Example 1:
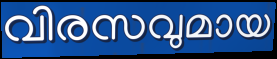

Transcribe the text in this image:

വിരസവുമായ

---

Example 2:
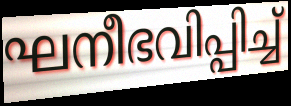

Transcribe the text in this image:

ഘനീഭവിപ്പിച്ച്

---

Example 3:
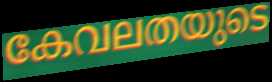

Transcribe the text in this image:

കേവലതയുടെ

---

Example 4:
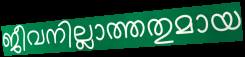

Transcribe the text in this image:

ജീവനില്ലാത്തതുമായ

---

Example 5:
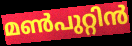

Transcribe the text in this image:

മൺപുറ്റിൻ